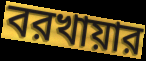
বরখায়ার